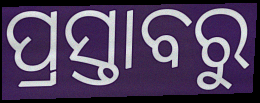
ପ୍ରସ୍ତାବରୁ